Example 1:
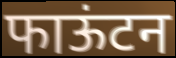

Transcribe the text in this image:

फाऊंटन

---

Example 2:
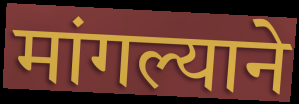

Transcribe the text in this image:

मांगल्याने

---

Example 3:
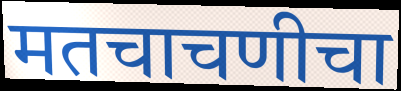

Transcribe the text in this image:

मतचाचणीचा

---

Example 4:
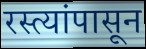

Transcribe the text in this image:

रस्त्यांपासून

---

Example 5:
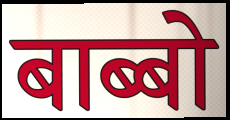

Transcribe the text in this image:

बाब्बो